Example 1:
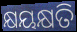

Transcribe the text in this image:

କ୍ଷୟକ୍ଷତି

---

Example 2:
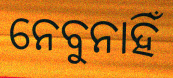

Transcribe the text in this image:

ନେବୁନାହିଁ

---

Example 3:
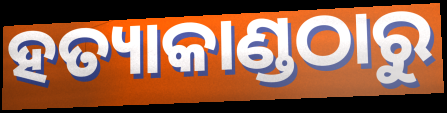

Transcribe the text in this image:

ହତ୍ୟାକାଣ୍ଡଠାରୁ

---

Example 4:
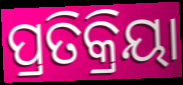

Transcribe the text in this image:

ପ୍ରତିକ୍ରିୟା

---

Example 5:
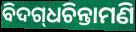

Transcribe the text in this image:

ବିଦଗ୍‌ଧଚିନ୍ତାମଣି